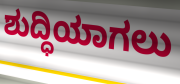
ಶುದ್ಧಿಯಾಗಲು